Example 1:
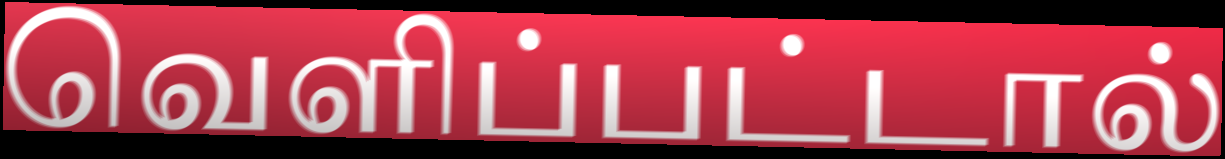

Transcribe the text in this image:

வெளிப்பட்டால்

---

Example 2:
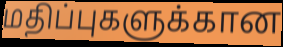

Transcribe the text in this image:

மதிப்புகளுக்கான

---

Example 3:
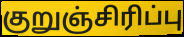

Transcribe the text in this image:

குறுஞ்சிரிப்பு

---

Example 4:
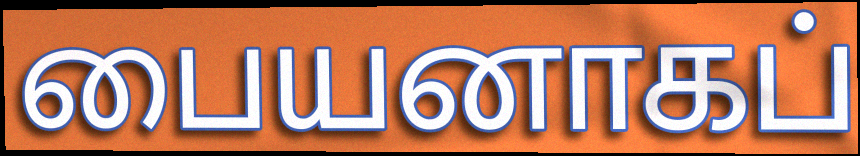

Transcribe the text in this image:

பையனாகப்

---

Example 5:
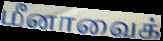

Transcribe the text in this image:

மீனாவைக்